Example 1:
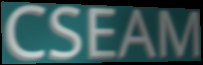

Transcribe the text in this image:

CSEAM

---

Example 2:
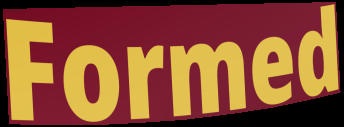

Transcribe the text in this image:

Formed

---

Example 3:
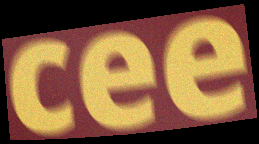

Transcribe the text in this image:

cee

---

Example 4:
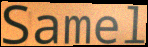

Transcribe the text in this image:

Samel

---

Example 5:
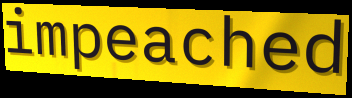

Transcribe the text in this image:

impeached